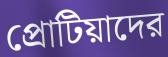
প্রোটিয়াদের